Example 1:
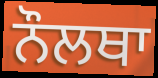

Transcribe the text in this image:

ਨੌਲਥਾ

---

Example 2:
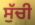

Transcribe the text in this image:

ਸੁੱਚੀ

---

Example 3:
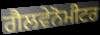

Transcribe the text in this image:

ਗੈਲਵੇਨੋਮੀਟਰ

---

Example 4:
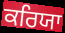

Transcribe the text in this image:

ਕਰਿਯਾ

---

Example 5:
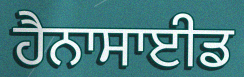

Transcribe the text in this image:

ਹੈਨਾਸਾਈਡ